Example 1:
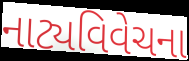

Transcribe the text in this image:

નાટ્યવિવેચના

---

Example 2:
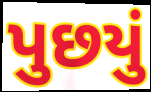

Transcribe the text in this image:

પુછયું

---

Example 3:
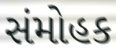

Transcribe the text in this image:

સંમોહક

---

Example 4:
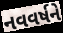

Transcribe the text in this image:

નવવર્ષને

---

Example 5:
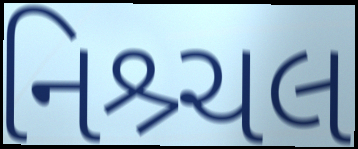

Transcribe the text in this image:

નિશ્ર્ચલ